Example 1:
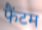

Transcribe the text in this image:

फैंटम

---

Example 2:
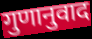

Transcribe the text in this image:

गुणानुवाद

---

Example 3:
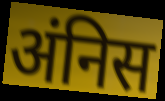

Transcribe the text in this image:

अंनिस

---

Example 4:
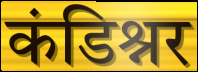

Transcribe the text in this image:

कंडिश्नर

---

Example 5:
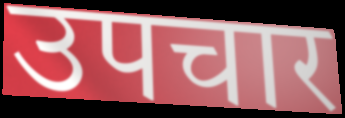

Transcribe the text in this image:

उपचार